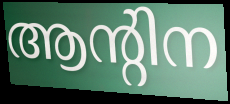
ആന്റിന